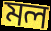
মল